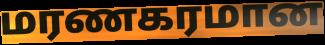
மரணகரமான